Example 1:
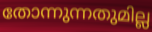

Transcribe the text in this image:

തോന്നുന്നതുമില്ല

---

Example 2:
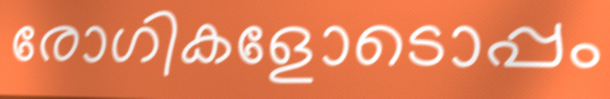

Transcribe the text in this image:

രോഗികളോടൊപ്പം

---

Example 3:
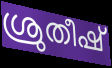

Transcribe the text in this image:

ശ്രുതീഷ്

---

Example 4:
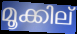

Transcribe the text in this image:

മൂക്കില്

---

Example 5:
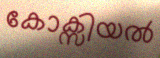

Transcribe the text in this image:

കോക്സിയൽ